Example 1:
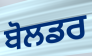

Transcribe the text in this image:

ਬੋਲਡਰ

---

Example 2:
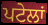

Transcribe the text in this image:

ਪਟੇਲਾਂ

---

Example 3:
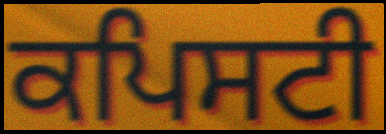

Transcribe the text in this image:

ਕਪਿਸਟੀ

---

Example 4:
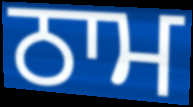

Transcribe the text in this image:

ਠਾਮ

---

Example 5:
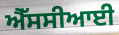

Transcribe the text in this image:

ਐੱਸਸੀਆਈ